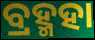
ବ୍ରହ୍ମହା